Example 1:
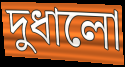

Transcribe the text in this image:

দুধালো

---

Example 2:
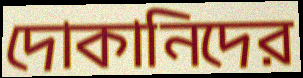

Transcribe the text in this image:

দোকানিদের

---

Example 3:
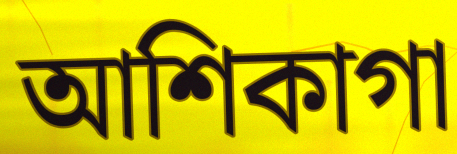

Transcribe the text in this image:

আশিকাগা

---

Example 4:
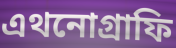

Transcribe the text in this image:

এথনোগ্রাফি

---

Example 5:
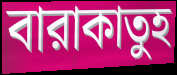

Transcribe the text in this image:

বারাকাতুহ